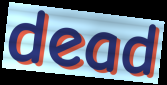
dead